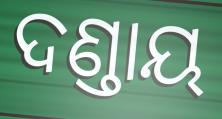
ଦଣ୍ଡାୟ